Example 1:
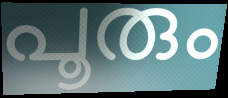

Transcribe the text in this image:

പൂരും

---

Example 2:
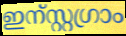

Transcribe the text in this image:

ഇന്സ്റ്റഗ്രാം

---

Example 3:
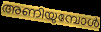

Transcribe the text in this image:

അണിയുമ്പോൾ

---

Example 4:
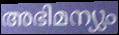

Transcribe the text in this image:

അഭിമന്യും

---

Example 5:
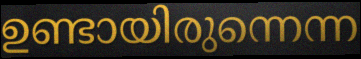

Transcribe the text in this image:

ഉണ്ടായിരുന്നെന്ന